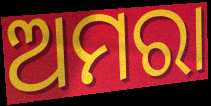
ଅମରା